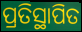
ପ୍ରତିସ୍ଥାପିତ